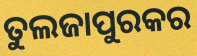
ତୁଲଜାପୁରକର